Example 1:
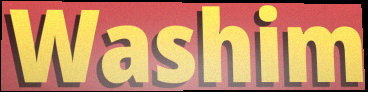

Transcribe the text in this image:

Washim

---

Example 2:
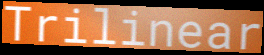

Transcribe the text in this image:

Trilinear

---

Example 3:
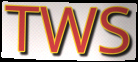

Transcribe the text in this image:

TWS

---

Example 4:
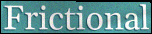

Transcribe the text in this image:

Frictional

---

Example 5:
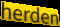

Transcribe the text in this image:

herden